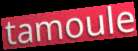
tamoule